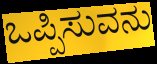
ಒಪ್ಪಿಸುವನು